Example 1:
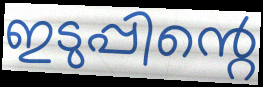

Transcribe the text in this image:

ഇടുപ്പിന്റെ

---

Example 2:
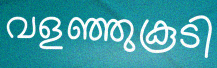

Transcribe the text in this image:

വളഞ്ഞുകൂടി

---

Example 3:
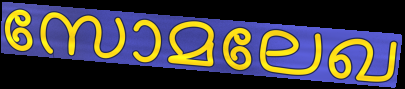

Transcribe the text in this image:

സോമലേഖ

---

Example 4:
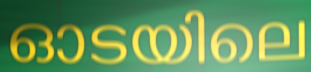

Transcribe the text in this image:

ഓടയിലെ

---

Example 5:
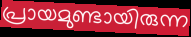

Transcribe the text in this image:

പ്രായമുണ്ടായിരുന്ന